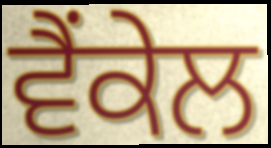
ਵੈਂਕੇਲ